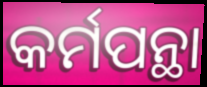
କର୍ମପନ୍ଥା